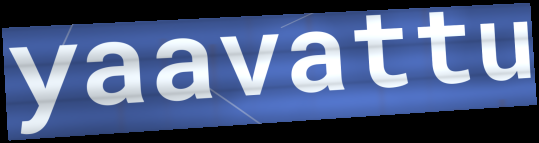
yaavattu